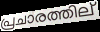
പ്രചാരത്തില്